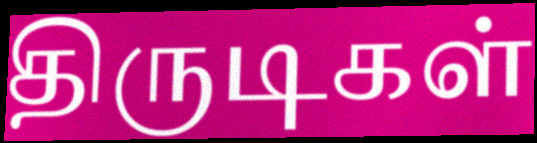
திருடிகள்